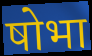
षोभा